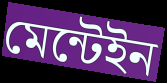
মেন্টেইন